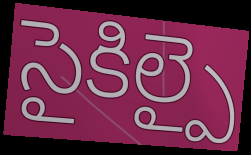
సైకిల్పై